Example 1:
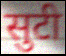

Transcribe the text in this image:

सुटी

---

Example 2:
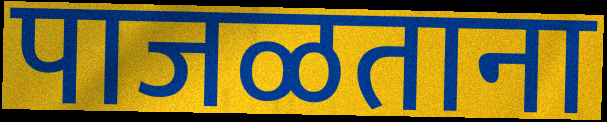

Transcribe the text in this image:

पाजळताना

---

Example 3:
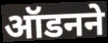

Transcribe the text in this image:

ऑडनने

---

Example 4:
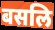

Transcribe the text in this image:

बसलि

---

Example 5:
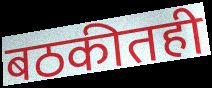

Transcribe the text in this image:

बठकीतही